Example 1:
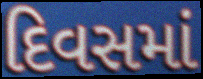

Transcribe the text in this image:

દિવસમાં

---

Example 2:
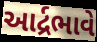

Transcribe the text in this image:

આર્દ્રભાવે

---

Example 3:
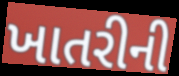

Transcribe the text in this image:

ખાતરીની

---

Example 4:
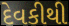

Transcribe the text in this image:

દેવકીથી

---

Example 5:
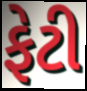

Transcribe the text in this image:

ફેટી